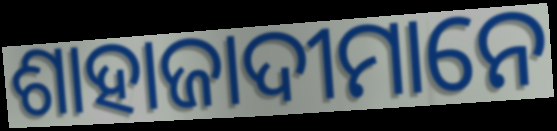
ଶାହାଜାଦୀମାନେ